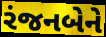
રંજનબેને